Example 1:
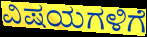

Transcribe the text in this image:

ವಿಷಯಗಳಿಗೆ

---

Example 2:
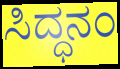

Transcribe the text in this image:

ಸಿದ್ಧನಂ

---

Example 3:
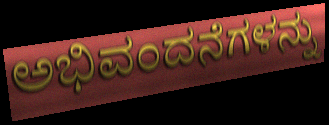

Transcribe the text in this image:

ಅಭಿವಂದನೆಗಳನ್ನು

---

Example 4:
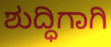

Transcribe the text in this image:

ಶುದ್ಧಿಗಾಗಿ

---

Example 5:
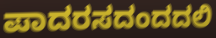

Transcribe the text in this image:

ಪಾದರಸದಂದದಲಿ